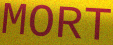
MORT